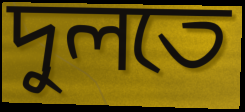
দুলতে